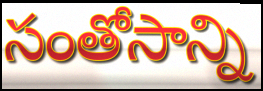
సంతోసాన్ని